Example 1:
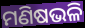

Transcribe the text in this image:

ମଣିଷଭଳି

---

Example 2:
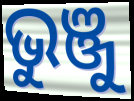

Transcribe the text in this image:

ଭୁଞ୍ଜୁ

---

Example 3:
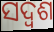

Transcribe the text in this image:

ସଦ୍ଵଶ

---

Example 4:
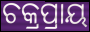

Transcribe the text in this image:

ଚକ୍ରପ୍ରାୟ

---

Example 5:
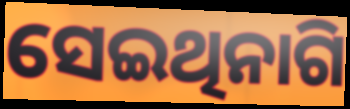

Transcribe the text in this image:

ସେଇଥିନାଗି